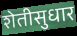
शेतीसुधार